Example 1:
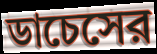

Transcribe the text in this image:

ডাচেসের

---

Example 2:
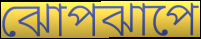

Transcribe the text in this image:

ঝোপঝাপে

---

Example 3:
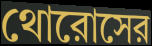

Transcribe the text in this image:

থোরোসের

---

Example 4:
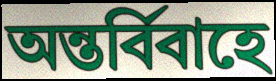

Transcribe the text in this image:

অন্তর্বিবাহে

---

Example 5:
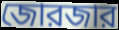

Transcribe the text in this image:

জোরজার